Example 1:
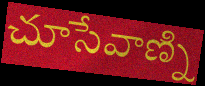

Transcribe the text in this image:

చూసేవాణ్ని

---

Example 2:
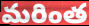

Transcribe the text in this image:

మరింత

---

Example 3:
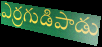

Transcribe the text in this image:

ఎర్రగుడిపాడు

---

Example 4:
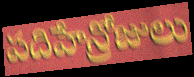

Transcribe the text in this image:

పదిహేన్రోజులు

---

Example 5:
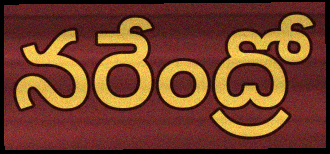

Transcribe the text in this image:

నరేంద్రో